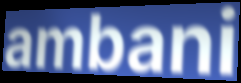
ambani